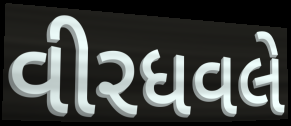
વીરધવલે